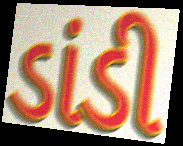
ડાંડી